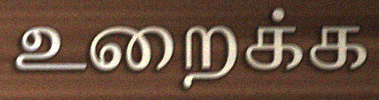
உறைக்க